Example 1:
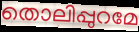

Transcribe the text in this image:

തൊലിപ്പുറമേ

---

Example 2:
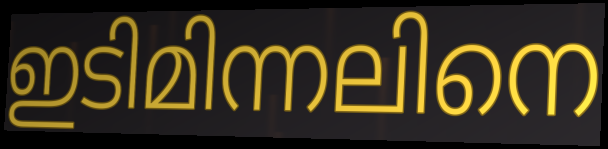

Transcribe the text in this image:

ഇടിമിന്നലിനെ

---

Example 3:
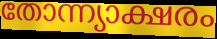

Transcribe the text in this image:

തോന്ന്യാക്ഷരം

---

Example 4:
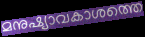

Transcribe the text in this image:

മനുഷ്യാവകാശത്തെ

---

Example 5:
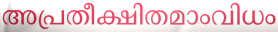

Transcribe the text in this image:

അപ്രതീക്ഷിതമാംവിധം